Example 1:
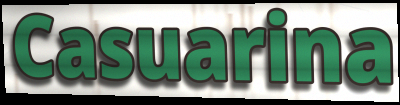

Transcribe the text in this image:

Casuarina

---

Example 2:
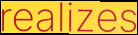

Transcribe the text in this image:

realizes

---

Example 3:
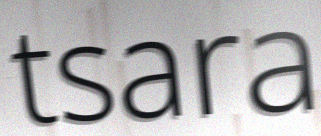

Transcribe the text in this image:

tsara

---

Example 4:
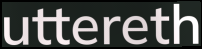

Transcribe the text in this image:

uttereth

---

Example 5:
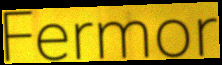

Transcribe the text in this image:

Fermor